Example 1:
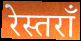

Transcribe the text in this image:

रेस्तराँ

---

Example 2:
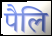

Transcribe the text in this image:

पैलि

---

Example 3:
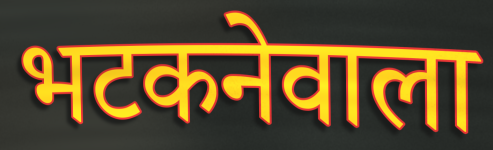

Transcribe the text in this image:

भटकनेवाला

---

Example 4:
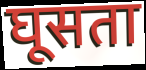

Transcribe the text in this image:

घूसता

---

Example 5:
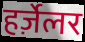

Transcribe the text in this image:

हर्ज़ेलर